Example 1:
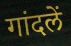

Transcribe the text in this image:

गांदलें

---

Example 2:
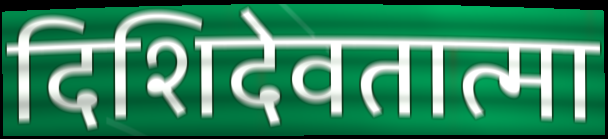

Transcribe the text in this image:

दिशिदेवतात्मा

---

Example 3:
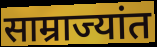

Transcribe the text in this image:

साम्राज्यांत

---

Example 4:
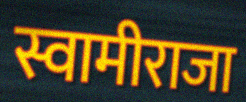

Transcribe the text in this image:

स्वामीराजा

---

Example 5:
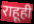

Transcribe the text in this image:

राहूही